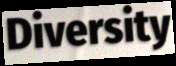
Diversity